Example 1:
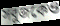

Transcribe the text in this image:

সবুজকেও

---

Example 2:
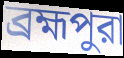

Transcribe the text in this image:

ব্রহ্মপুরা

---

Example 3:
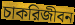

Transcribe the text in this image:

চাকরিজীবন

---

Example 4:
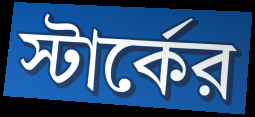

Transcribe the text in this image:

স্টার্কের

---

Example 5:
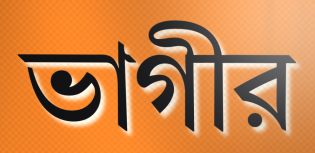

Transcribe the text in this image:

ভাগীর